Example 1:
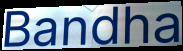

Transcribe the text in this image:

Bandha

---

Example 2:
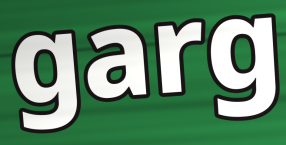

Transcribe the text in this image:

garg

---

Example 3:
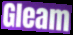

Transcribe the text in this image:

Gleam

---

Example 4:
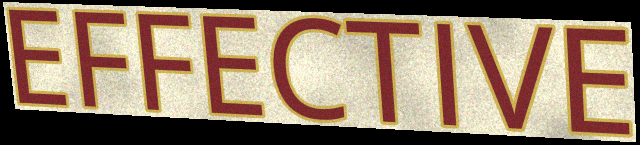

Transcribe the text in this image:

EFFECTIVE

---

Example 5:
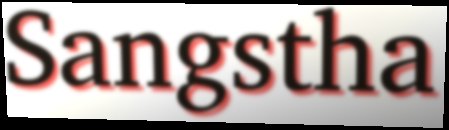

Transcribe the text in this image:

Sangstha